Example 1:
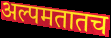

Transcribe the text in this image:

अल्पमतातच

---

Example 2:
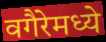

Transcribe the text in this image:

वगैरेमध्ये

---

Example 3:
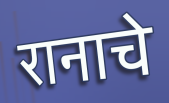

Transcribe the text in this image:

रानाचे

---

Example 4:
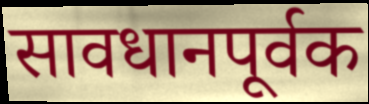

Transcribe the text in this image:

सावधानपूर्वक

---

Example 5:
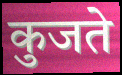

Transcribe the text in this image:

कुजते